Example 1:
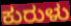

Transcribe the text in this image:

ಕುರುಳು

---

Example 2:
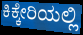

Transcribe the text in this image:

ಕಿಕ್ಕೇರಿಯಲ್ಲಿ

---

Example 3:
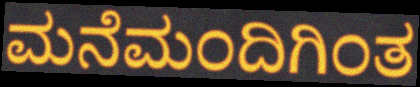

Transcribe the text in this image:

ಮನೆಮಂದಿಗಿಂತ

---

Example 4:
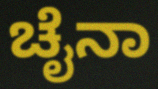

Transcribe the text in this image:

ಚೈನಾ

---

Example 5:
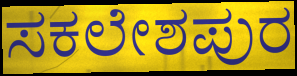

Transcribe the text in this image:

ಸಕಲೇಶಪುರ